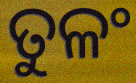
ତୁଳଂ